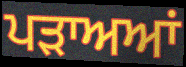
ਪੜਾਅਆਂ